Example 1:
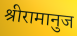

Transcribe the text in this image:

श्रीरामानुज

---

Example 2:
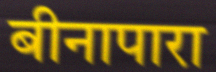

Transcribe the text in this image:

बीनापारा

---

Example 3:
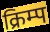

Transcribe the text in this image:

क्रिम्प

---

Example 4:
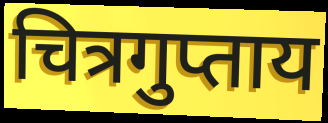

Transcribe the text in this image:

चित्रगुप्ताय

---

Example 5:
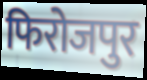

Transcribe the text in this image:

फिरोजपुर